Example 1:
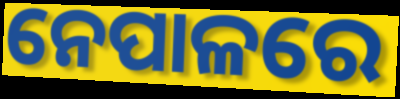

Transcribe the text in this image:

ନେପାଳରେ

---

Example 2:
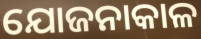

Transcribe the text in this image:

ଯୋଜନାକାଳ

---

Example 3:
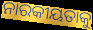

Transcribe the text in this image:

ନାରକୀୟତାକୁ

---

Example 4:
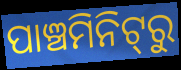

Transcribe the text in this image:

ପାଞ୍ଚମିନିଟ୍‌ରୁ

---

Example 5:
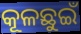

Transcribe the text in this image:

କୂଳଛୁଇଁ